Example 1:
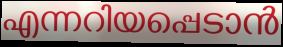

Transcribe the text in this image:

എന്നറിയപ്പെടാൻ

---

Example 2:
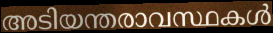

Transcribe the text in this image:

അടിയന്തരാവസ്ഥകൾ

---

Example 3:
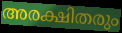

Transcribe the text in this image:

അരക്ഷിതരും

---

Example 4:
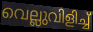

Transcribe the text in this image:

വെല്ലുവിളിച്ച്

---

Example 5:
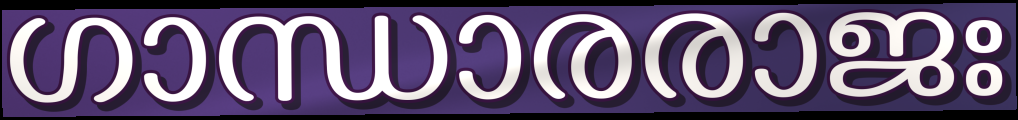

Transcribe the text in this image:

ഗാന്ധാരരാജഃ